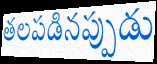
తలపడినప్పుడు